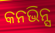
କନଭିନ୍ସ